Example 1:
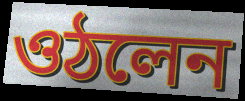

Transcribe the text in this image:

ওঠলেন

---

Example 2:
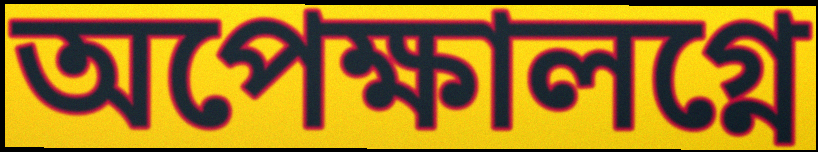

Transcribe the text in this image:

অপেক্ষালগ্নে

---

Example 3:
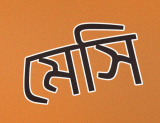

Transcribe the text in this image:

মেসি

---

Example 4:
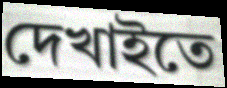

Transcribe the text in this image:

দেখাইতে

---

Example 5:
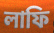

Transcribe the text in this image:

লাফি